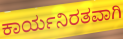
ಕಾರ್ಯನಿರತವಾಗಿ